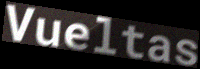
Vueltas